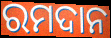
ରମଦାନ